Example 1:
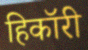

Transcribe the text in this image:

हिकॉरी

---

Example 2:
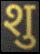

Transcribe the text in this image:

शु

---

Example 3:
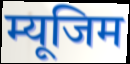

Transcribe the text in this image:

म्यूजिम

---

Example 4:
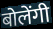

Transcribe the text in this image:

बोलेंगी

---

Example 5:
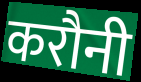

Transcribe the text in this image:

करौनी